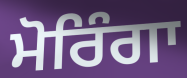
ਮੋਰਿੰਗਾ